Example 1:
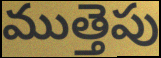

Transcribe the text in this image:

ముత్తెపు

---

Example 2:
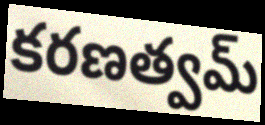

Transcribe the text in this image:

కరణత్వమ్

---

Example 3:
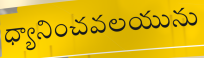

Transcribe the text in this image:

ధ్యానించవలయును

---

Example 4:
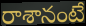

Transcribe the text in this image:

రాశానంటే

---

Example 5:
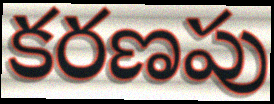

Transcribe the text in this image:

కరణపు